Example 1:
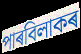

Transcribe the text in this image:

পাৰবিলাকৰ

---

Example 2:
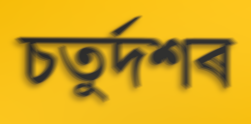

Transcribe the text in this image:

চতুৰ্দশৰ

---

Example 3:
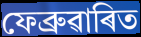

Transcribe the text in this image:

ফেব্ৰুৱাৰিত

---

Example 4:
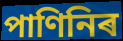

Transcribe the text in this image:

পাণিনিৰ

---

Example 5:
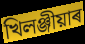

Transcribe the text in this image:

খিলঞ্জীয়াৰ